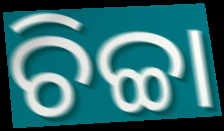
ଚିଚ୍ଚା